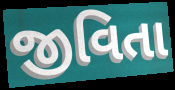
જીવિતા